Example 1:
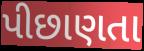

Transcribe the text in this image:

પીછાણતા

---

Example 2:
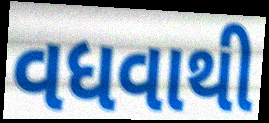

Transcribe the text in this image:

વધવાથી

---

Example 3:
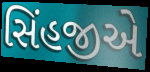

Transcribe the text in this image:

સિંહજીએ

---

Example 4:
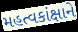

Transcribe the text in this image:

મહત્વકાંક્ષાને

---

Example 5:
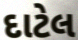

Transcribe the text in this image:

દાટેલ